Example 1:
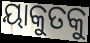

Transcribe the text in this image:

ୟାକୁତକୁ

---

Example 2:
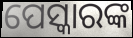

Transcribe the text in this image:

ପେସ୍କାରଙ୍କ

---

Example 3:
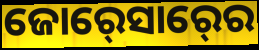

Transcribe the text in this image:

ଜୋର୍‍ସୋର୍‍ରେ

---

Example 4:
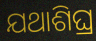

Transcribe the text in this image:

ଯଥାଶିଘ୍ର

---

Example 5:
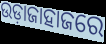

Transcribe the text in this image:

ଉଡ଼ାଜାହାଜରେ